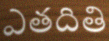
ఎతదితి